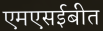
एमएसईबीत